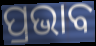
ପ୍ରଭାବ